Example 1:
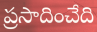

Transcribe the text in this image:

ప్రసాదించేది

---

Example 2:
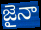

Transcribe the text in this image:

జైనా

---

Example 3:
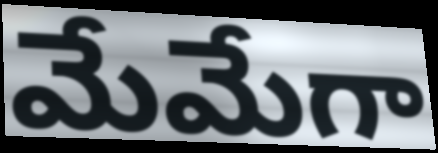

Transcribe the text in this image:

మేమేగా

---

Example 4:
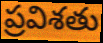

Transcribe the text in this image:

ప్రవిశతు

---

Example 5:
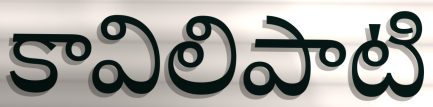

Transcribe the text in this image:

కావిలిపాటి